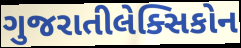
ગુજરાતીલેક્સિકોન